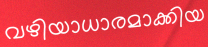
വഴിയാധാരമാക്കിയ